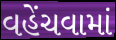
વહેંચવામાં